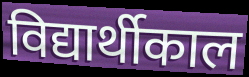
विद्यार्थीकाल